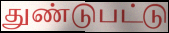
துண்டுபட்டு